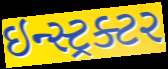
ઇન્સ્ટ્રક્ટર